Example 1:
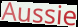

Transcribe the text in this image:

Aussie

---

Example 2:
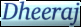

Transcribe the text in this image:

Dheeraj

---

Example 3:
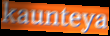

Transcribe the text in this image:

kaunteya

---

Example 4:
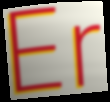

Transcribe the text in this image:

Er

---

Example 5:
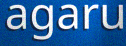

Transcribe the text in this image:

agaru